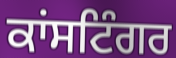
ਕਾਂਸਟਿੰਗਰ